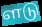
ளடு